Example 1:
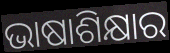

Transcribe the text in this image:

ଭାଷାଶିକ୍ଷାର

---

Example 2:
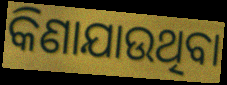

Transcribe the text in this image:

କିଣାଯାଉଥିବା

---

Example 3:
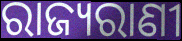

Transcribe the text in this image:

ରାଜ୍ୟରାଣୀ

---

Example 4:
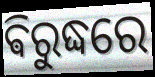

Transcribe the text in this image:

ଵିରୁଦ୍ଧରେ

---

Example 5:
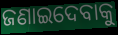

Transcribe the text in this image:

ଜଣାଇଦେବାକୁ